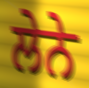
ਲੇਨੇ